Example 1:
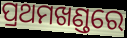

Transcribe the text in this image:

ପ୍ରଥମଖଣ୍ଡରେ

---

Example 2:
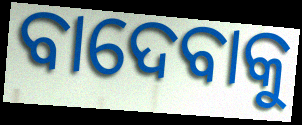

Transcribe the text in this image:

ବାଦେବାକୁ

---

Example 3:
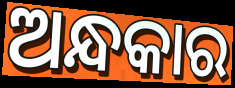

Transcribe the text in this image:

ଅନ୍ଧକାର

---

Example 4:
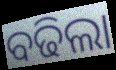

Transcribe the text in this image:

ବଢିଲା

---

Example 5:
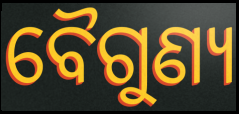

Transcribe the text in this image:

ବୈଗୁଣ୍ୟ